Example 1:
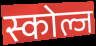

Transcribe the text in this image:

स्कोल्ज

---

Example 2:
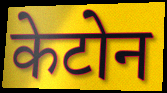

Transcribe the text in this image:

केटोन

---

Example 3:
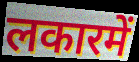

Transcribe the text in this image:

लकारमें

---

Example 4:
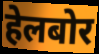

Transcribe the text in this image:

हेलबोर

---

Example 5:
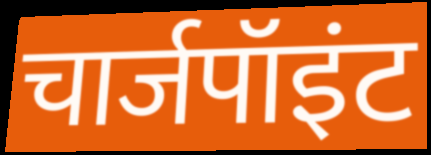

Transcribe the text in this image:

चार्जपॉइंट